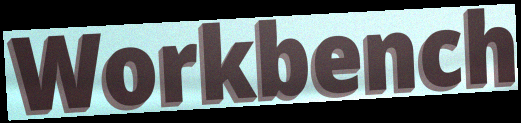
Workbench